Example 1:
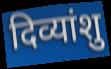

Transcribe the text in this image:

दिव्यांशु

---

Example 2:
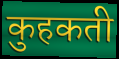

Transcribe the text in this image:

कुहकती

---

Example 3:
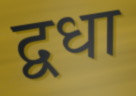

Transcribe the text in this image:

द्वधा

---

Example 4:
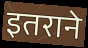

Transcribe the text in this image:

इतराने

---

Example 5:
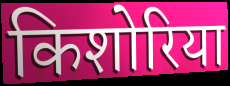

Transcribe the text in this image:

किशोरिया